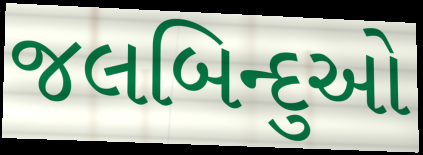
જલબિન્દુઓ